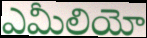
ఎమీలియో